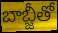
బాబ్జీతో